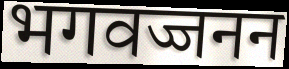
भगवज्जनन